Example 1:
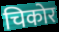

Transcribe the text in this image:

चिकोर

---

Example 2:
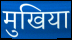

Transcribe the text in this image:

मुखिया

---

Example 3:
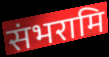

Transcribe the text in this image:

संभरामि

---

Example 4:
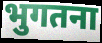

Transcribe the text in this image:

भुगतना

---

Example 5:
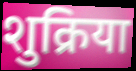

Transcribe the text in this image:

शुक्रिया